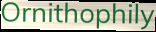
Ornithophily